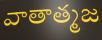
వాతాత్మజ